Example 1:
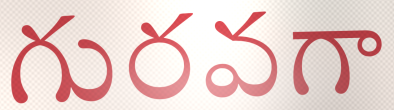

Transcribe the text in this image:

గురవగా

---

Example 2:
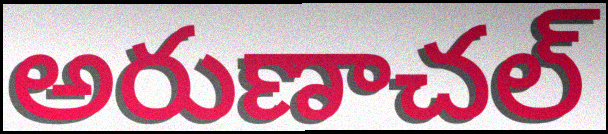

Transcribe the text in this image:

అరుణాచల్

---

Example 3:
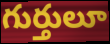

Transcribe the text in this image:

గుర్తులూ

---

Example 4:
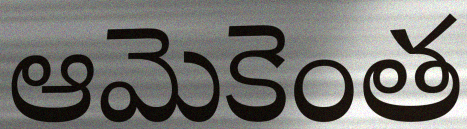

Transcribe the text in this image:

ఆమెకెంత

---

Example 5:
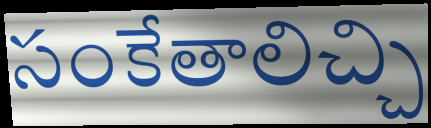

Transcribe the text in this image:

సంకేతాలిచ్చి